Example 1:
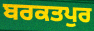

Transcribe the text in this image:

ਬਰਕਤਪੁਰ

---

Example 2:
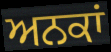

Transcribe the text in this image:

ਅਨਕਾਂ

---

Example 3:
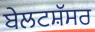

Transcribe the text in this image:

ਬੇਲਟਸ਼ੱਸਰ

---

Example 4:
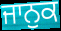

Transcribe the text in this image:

ਜਾਨੁਕ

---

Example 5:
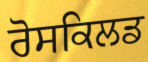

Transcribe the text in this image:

ਰੋਸਕਿਲਡ